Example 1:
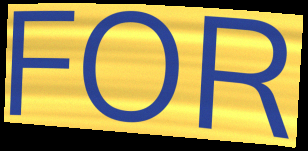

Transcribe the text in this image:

FOR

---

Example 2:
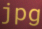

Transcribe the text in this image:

jpg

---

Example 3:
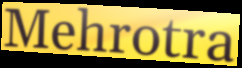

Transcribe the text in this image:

Mehrotra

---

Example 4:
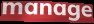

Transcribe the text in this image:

manage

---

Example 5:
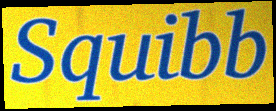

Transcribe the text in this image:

Squibb